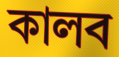
কালব